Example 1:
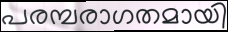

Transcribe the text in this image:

പരമ്പരാഗതമായി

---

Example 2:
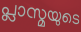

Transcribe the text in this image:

പ്ലാസ്മയുടെ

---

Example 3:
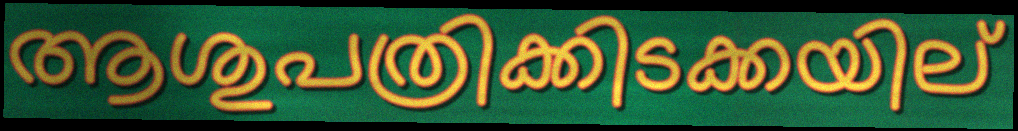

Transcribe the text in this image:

ആശുപത്രിക്കിടക്കയില്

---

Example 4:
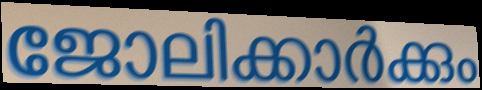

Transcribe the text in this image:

ജോലിക്കാർക്കും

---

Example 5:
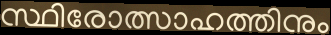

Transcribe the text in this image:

സ്ഥിരോത്സാഹത്തിനും